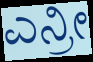
ಎನ್ರೀ